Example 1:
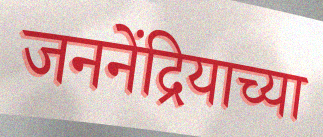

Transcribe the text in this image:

जननेंद्रियाच्या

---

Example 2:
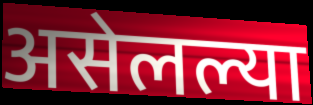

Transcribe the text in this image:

असेलल्या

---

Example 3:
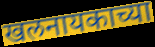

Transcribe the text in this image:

खलनायकाच्या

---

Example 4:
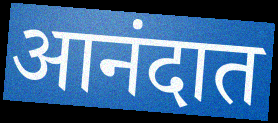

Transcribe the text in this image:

आनंदात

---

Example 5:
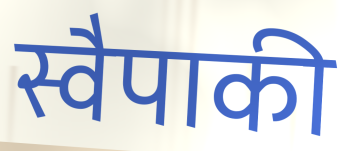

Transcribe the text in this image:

स्वैपाकी